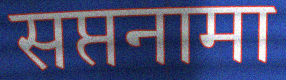
सप्तनामा